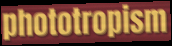
phototropism